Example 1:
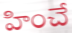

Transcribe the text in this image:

హించే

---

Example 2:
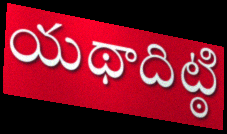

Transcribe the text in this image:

యథాదిట్ఠి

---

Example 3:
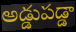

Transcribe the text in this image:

అడ్డుపడ్డా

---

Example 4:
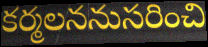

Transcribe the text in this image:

కర్మలననుసరించి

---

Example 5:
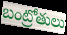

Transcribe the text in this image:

బంట్రోతులు